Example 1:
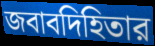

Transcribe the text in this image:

জবাবদিহিতার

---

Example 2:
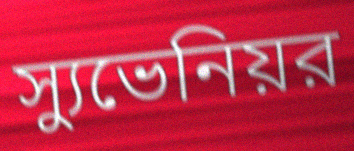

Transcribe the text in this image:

স্যুভেনিয়র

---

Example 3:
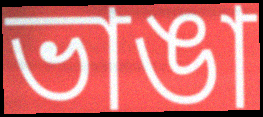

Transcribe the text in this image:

ভাঙা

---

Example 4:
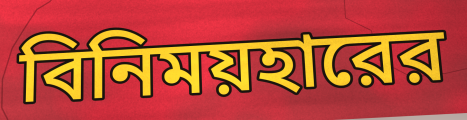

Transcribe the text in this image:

বিনিময়হারের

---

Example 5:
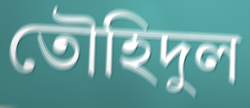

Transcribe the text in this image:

তৌহিদুল